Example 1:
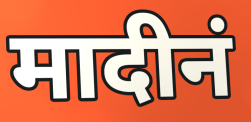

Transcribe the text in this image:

मादीनं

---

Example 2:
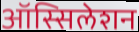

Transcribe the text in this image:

ऑस्सिलेशन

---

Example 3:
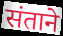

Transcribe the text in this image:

संताने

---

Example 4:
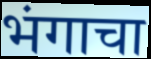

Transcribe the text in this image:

भंगाचा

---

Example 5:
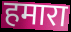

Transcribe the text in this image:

हमारा